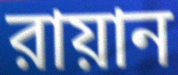
রায়ান